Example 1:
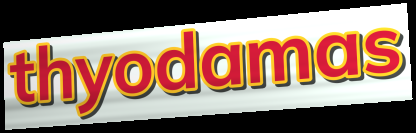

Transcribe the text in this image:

thyodamas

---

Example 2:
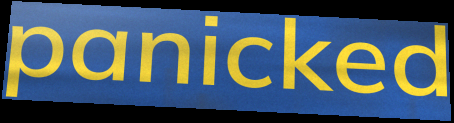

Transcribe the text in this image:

panicked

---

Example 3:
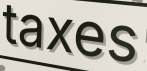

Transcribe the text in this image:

taxes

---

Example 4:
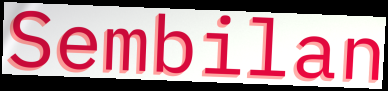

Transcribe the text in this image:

Sembilan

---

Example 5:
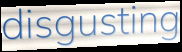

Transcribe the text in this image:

disgusting